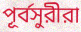
পূর্বসুরীরা